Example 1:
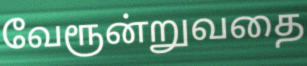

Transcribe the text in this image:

வேரூன்றுவதை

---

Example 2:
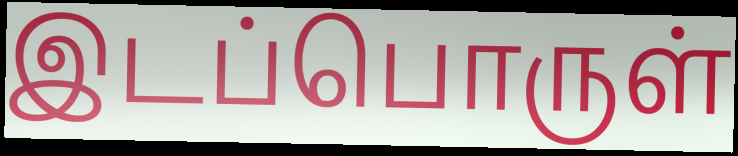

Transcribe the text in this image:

இடப்பொருள்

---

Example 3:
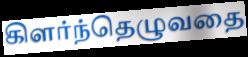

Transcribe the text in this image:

கிளர்ந்தெழுவதை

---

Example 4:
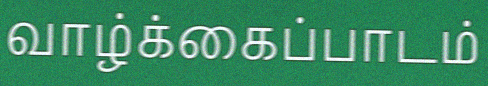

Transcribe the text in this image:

வாழ்க்கைப்பாடம்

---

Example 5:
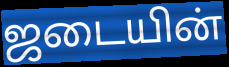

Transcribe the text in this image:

ஜடையின்